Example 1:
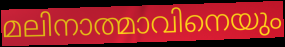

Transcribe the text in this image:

മലിനാത്മാവിനെയും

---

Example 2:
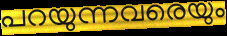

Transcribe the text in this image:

പറയുന്നവരെയും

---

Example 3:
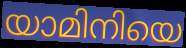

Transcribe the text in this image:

യാമിനിയെ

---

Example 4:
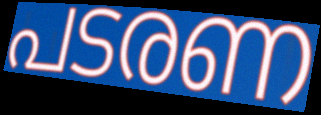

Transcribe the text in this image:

പടരണ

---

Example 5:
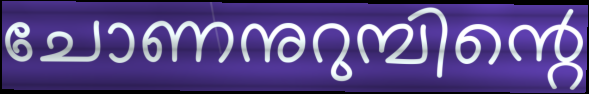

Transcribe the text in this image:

ചോണനുറുമ്പിന്റെ